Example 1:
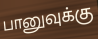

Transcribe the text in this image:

பானுவுக்கு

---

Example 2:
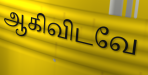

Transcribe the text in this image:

ஆகிவிடவே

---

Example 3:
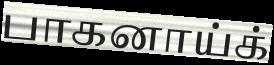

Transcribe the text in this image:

பாகனாய்க்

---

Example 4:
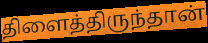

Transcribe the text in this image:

திளைத்திருந்தான்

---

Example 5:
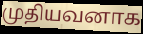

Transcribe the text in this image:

முதியவனாக